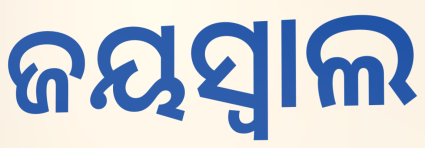
ଜୟସ୍ୱାଲ